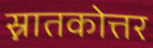
स्नातकोत्तर